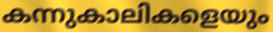
കന്നുകാലികളെയും